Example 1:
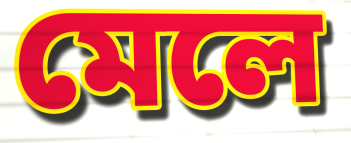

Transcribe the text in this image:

মেলে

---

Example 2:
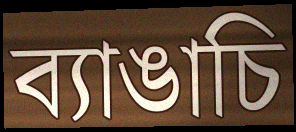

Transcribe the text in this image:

ব্যাঙাচি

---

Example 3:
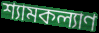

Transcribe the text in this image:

শ্যামকল্যাণ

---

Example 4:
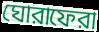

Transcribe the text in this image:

ঘোরাফেরা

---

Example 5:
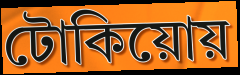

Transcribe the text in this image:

টোকিয়োয়